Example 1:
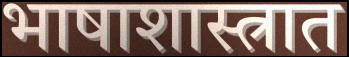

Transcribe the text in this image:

भाषाशास्त्रात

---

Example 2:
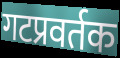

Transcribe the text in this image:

गटप्रवर्तक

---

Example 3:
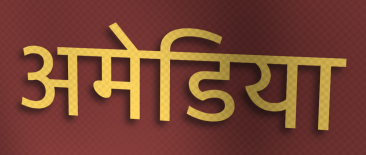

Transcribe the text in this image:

अमेडिया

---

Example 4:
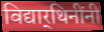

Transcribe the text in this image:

विद्यार्थिनींनी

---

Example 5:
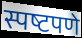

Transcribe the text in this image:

स्‍पष्‍टपणे